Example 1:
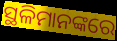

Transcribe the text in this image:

ସ୍ଥଳିମାନଙ୍କରେ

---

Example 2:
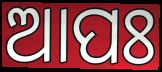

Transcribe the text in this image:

ଆପଃ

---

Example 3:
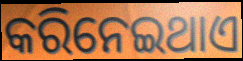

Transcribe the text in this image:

କରିନେଇଥାଏ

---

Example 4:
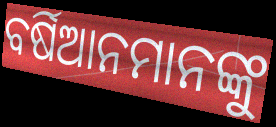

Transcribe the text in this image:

ବର୍ଷିଆନମାନଙ୍କୁ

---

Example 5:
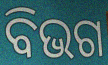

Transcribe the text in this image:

ବିଭଗ